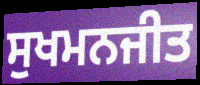
ਸੁਖਮਨਜੀਤ